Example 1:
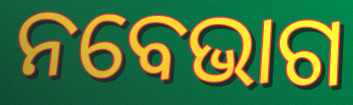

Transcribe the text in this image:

ନବେଭାଗ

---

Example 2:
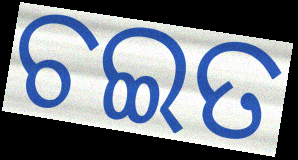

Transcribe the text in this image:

ଚଇତ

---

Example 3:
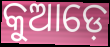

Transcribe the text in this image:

କୁଆଡ଼େ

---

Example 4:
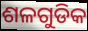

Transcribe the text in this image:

ଶଳଗୁଡିକ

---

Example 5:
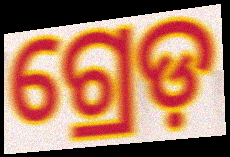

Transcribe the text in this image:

ଗ୍ରେଡ଼